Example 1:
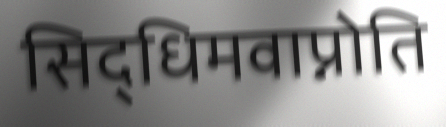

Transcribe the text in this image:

सिद्धिमवाप्नोति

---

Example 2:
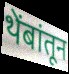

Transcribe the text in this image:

थेंबांतून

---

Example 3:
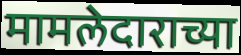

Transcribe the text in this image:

मामलेदाराच्या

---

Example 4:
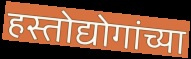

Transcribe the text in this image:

हस्तोद्योगांच्या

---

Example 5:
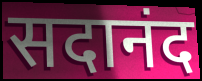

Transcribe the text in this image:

सदानंद